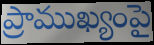
ప్రాముఖ్యంపై